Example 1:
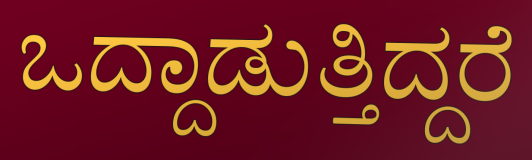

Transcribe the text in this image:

ಒದ್ದಾಡುತ್ತಿದ್ದರೆ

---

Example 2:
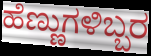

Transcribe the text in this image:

ಹೆಣ್ಣುಗಳಿಬ್ಬರ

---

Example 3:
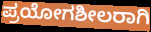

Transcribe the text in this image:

ಪ್ರಯೋಗಶೀಲರಾಗಿ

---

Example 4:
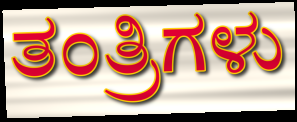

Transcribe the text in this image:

ತಂತ್ರಿಗಳು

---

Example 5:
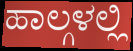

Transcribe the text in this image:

ಹಾಲ್ಗಳಲ್ಲಿ